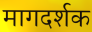
मागदर्शक